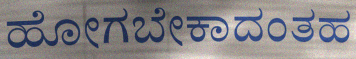
ಹೋಗಬೇಕಾದಂತಹ